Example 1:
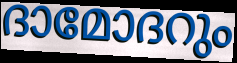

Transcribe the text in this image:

ദാമോദറും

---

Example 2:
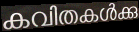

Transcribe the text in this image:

കവിതകൾക്കു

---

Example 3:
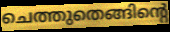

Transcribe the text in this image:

ചെത്തുതെങ്ങിന്റെ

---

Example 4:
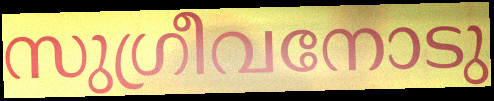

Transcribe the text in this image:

സുഗ്രീവനോടു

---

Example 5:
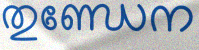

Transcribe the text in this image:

തുണ്ഡേന